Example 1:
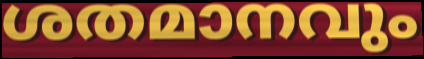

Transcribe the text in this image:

ശതമാനവും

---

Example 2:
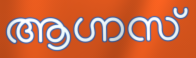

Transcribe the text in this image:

ആഗ്നസ്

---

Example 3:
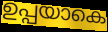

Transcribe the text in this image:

ഉപ്പയാകെ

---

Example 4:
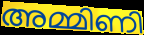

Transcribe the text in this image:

അമ്മിണി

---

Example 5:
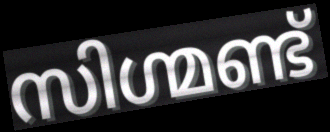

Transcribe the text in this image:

സിഗ്മണ്ട്